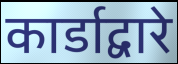
कार्डाद्वारे